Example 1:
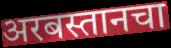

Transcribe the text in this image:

अरबस्तानचा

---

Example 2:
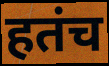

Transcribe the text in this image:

हतंच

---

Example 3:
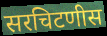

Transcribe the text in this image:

सरचिटणीस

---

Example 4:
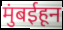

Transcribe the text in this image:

मुंबईहून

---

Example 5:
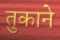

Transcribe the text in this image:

तुकाने